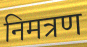
निमत्रण